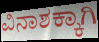
ವಿನಾಶಕ್ಕಾಗಿ